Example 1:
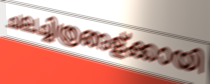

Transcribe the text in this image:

ചലച്ചിത്രങ്ങള്ക്കായി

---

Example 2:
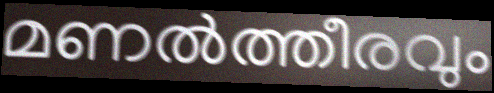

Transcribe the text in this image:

മണൽത്തീരവും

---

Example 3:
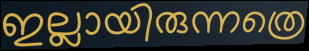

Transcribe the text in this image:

ഇല്ലായിരുന്നത്രെ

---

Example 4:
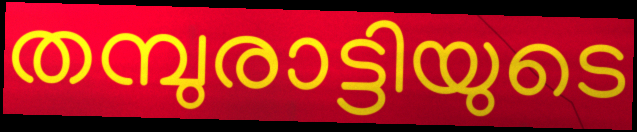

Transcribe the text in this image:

തമ്പുരാട്ടിയുടെ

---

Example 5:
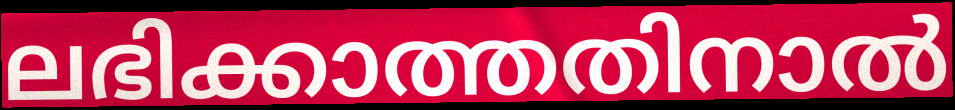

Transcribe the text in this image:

ലഭിക്കാത്തതിനാൽ